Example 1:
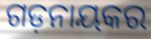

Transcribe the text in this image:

ଗଡ଼ନାୟକର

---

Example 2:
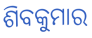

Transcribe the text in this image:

ଶିବକୁମାର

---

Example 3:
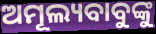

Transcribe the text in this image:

ଅମୂଲ୍ୟବାବୁଙ୍କୁ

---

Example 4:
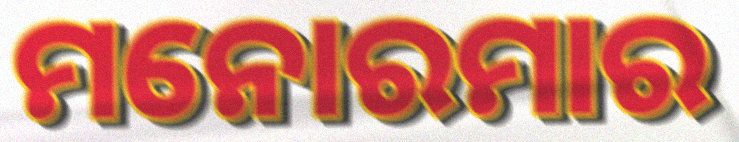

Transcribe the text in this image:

ମନୋରମାର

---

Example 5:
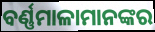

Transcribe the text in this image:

ବର୍ଣ୍ଣମାଳାମାନଙ୍କର